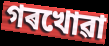
গৰখোৱা